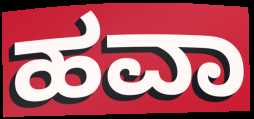
ಹವಾ